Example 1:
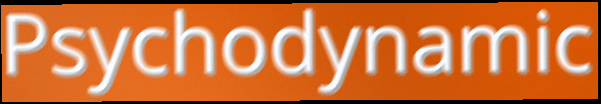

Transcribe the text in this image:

Psychodynamic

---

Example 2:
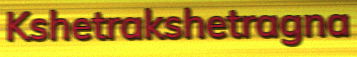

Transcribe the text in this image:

Kshetrakshetragna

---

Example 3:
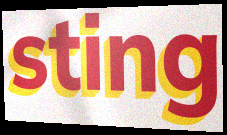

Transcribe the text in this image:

sting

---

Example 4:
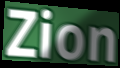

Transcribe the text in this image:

Zion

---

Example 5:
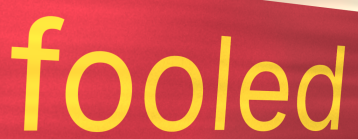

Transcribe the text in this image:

fooled